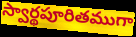
స్వార్థపూరితముగా